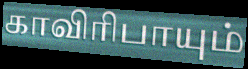
காவிரிபாயும்